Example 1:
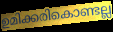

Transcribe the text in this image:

ഉമിക്കരികൊണ്ടല്ല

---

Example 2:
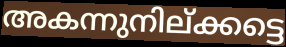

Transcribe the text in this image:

അകന്നുനില്ക്കട്ടെ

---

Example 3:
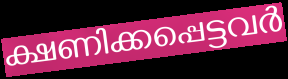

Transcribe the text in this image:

ക്ഷണിക്കപ്പെട്ടവർ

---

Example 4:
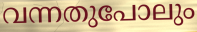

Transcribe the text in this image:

വന്നതുപോലും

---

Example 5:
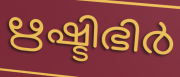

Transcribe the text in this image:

ഋഷ്ടിഭിർ